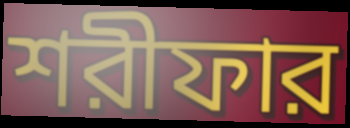
শরীফার